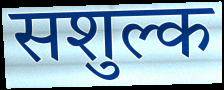
सशुल्क